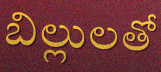
బిల్లులతో